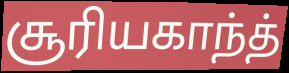
சூரியகாந்த்